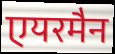
एयरमैन